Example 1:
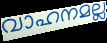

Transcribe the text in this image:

വാഹനമല്ല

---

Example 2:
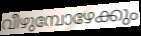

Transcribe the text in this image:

വീഴുമ്പോഴേക്കും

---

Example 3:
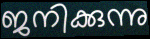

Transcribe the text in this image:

ജനിക്കുന്നു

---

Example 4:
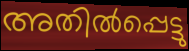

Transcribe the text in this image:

അതിൽപ്പെട്ടു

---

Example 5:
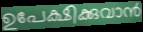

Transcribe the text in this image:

ഉപേക്ഷിക്കുവാൻ